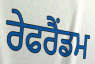
ਰੇਫਰੈਂਡਮ